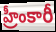
హ్రీంకారీ